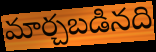
మార్చబడినది